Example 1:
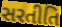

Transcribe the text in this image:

સરતીતિ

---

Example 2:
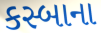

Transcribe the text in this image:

કસ્બાના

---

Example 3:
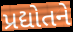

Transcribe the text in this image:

પ્રદ્યોતને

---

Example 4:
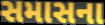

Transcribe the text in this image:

સમાસના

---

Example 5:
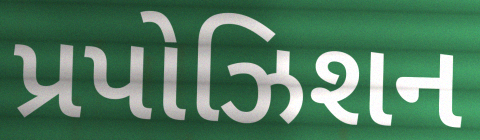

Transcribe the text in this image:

પ્રપોઝિશન